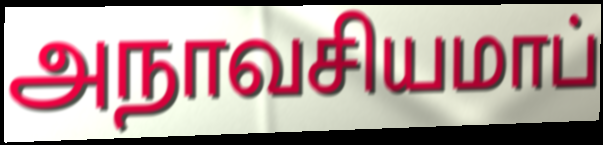
அநாவசியமாப்